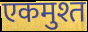
एकमुश्त